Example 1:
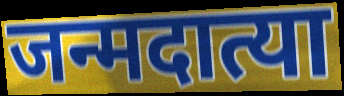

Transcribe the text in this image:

जन्मदात्या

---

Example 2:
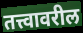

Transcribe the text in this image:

तत्त्वावरील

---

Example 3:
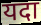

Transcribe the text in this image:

यदा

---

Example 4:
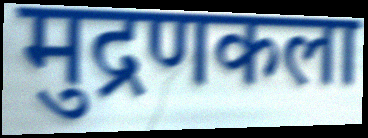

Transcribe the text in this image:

मुद्रणकला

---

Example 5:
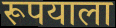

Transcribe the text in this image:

रूपयाला